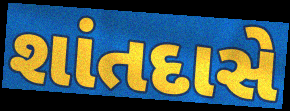
શાંતદાસે